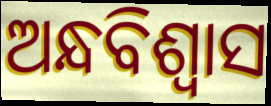
ଅନ୍ଧବିଶ୍ଵାସ